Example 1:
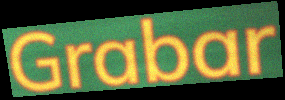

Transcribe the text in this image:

Grabar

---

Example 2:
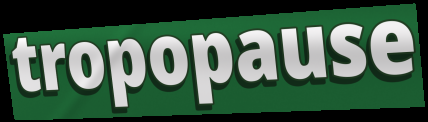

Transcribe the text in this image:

tropopause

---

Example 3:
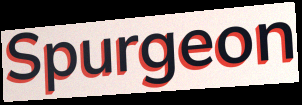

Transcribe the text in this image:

Spurgeon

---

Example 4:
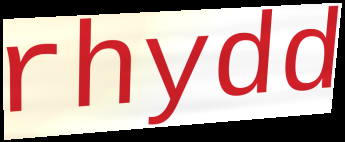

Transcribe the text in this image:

rhydd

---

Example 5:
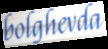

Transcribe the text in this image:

bolghevda